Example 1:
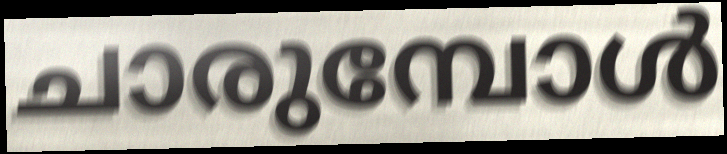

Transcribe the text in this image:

ചാരുമ്പോൾ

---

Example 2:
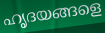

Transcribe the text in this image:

ഹൃദയങ്ങളെ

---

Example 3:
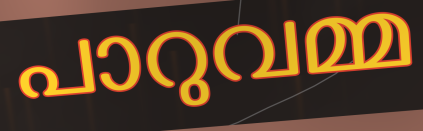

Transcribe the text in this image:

പാറുവമ്മ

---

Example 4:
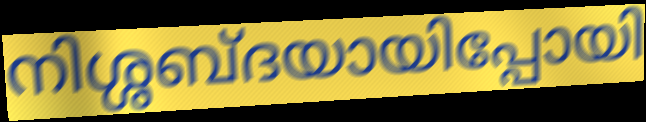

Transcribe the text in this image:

നിശ്ശബ്ദയായിപ്പോയി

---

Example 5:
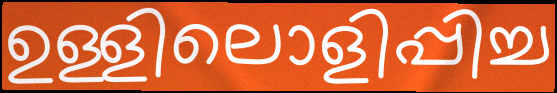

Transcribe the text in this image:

ഉള്ളിലൊളിപ്പിച്ച